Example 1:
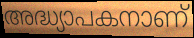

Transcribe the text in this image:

അദ്ധ്യാപകനാണ്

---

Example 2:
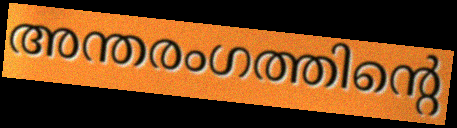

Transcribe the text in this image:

അന്തരംഗത്തിന്റെ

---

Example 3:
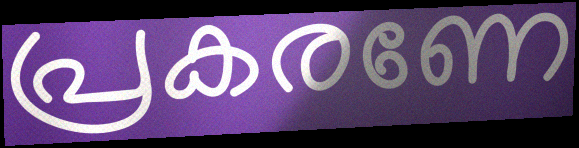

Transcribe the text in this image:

പ്രകരണേ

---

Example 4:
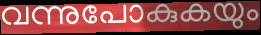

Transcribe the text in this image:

വന്നുപോകുകയും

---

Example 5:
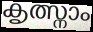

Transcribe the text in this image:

കൃത്സ്നാം